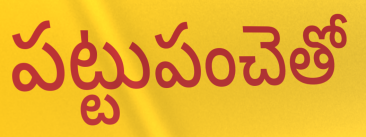
పట్టుపంచెతో